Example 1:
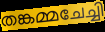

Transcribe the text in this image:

തങ്കമ്മചേച്ചി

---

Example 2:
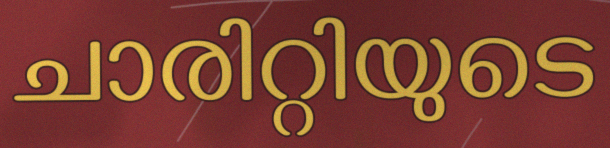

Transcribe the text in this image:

ചാരിറ്റിയുടെ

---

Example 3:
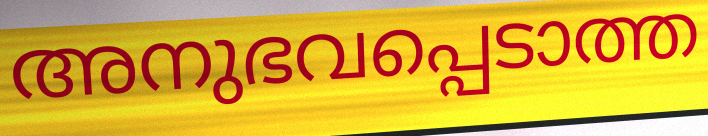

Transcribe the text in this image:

അനുഭവപ്പെടാത്ത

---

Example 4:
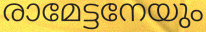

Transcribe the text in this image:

രാമേട്ടനേയും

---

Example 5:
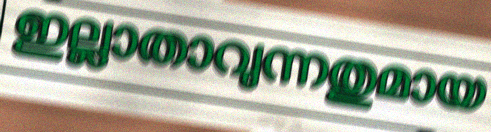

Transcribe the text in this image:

ഇല്ലാതാവുന്നതുമായ